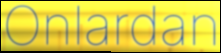
Onlardan